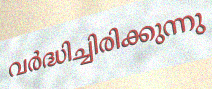
വർദ്ധിച്ചിരിക്കുന്നു